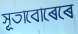
সূতাবোৰেৰে